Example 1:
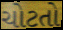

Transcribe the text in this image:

ચોટતો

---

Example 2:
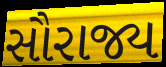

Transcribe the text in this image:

સૌરાજ્ય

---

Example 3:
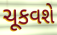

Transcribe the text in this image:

ચૂકવશે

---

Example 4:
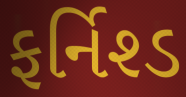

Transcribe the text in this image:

ફર્નિશ્ડ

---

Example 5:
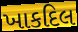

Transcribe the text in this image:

ખાકદિલ